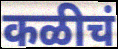
कळीचं